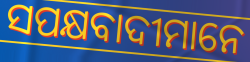
ସପକ୍ଷବାଦୀମାନେ